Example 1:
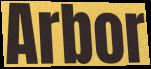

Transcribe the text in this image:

Arbor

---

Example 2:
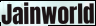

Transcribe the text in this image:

Jainworld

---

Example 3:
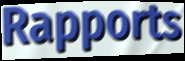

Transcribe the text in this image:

Rapports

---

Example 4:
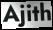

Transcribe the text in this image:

Ajith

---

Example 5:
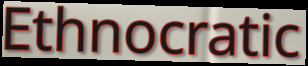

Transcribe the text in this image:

Ethnocratic